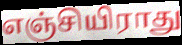
எஞ்சியிராது